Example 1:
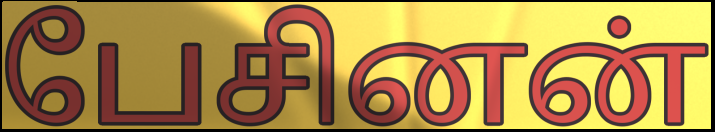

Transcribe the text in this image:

பேசினன்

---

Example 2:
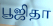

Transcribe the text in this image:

பூஜிதா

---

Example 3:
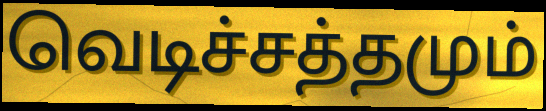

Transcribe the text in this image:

வெடிச்சத்தமும்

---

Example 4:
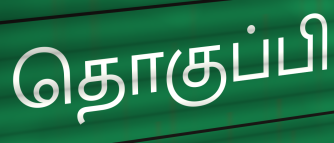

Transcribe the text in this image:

தொகுப்பி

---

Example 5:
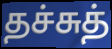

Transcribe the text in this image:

தச்சுத்